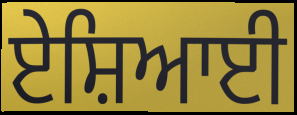
ਏਸ਼ਿਆਈ